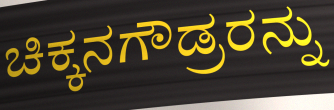
ಚಿಕ್ಕನಗೌಡ್ರರನ್ನು